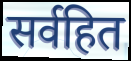
सर्वहित